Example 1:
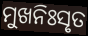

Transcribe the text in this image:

ମୁଖନିଃସୃତ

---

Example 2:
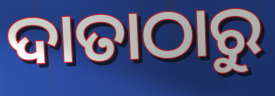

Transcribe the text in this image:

ଦାତାଠାରୁ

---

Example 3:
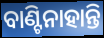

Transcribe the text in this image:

ବାଣ୍ଟିନାହାନ୍ତି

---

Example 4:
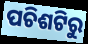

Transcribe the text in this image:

ପଚିଶଟିରୁ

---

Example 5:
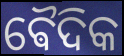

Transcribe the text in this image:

ଵୈଦିକ